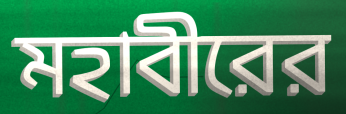
মহাবীরের